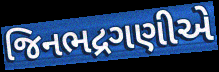
જિનભદ્રગણીએ